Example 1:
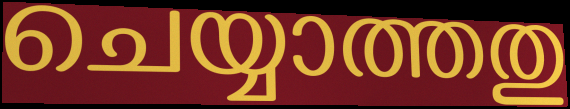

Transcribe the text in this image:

ചെയ്യാത്തതു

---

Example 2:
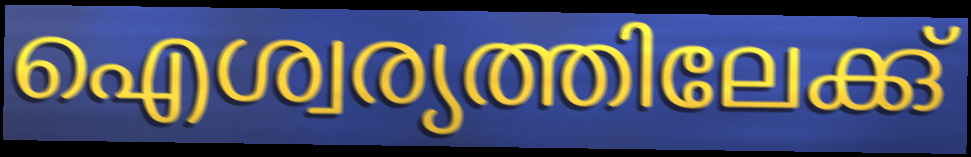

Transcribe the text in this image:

ഐശ്വര്യത്തിലേക്കു്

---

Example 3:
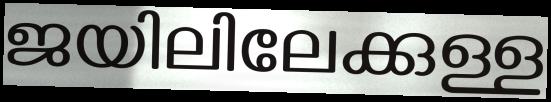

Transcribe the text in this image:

ജയിലിലേക്കുള്ള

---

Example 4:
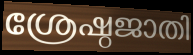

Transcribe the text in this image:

ശ്രേഷ്ഠജാതി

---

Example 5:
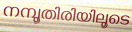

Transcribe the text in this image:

നമ്പൂതിരിയിലൂടെ